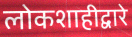
लोकशाहीद्वारे